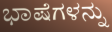
ಭಾಷೆಗಳನ್ನು